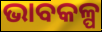
ଭାବକଳ୍ପ